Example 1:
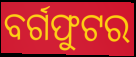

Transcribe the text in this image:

ବର୍ଗଫୁଟର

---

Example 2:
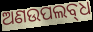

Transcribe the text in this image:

ଅଣଉପଲବ୍‌ଧ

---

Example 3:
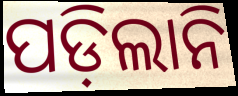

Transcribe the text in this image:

ପଡ଼ିଲାନି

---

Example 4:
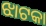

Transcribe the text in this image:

ଝାଟକା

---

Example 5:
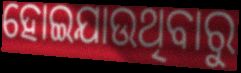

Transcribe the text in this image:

ହୋଇଯାଉଥିବାରୁ